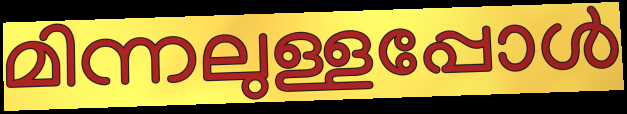
മിന്നലുള്ളപ്പോൾ